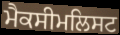
ਮੈਕਸੀਮਲਿਸਟ